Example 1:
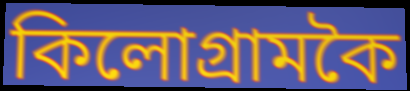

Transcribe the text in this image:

কিলোগ্ৰামকৈ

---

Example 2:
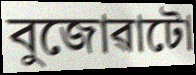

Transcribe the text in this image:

বুজোৱাটো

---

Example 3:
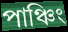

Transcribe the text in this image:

পাঞ্চিং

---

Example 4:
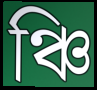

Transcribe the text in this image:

ঞ্চি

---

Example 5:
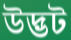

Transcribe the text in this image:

উদ্ভট